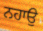
ਨਹਾਉ